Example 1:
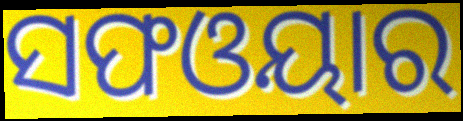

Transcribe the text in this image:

ସଫଓୟାର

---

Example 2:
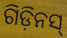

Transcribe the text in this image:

ଗିଡ଼ିନସ୍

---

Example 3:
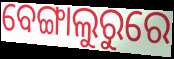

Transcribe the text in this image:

ବେଙ୍ଗାଲୁରୁରେ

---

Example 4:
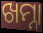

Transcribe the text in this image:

ଖମ୍ନା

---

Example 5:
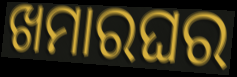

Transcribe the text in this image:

ଖମାରଘର